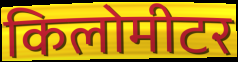
किलोमीटर